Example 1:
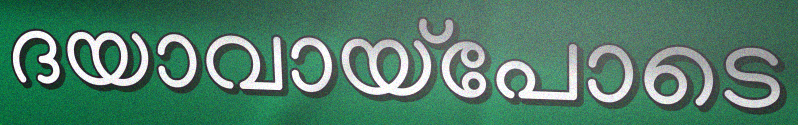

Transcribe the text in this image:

ദയാവായ്പോടെ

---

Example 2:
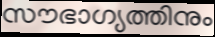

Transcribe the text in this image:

സൗഭാഗ്യത്തിനും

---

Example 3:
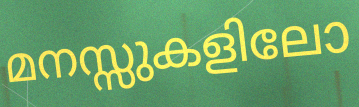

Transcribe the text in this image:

മനസ്സുകളിലോ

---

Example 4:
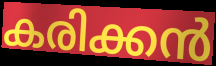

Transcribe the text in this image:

കരിക്കൻ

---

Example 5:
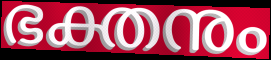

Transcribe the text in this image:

ഭക്തനും